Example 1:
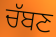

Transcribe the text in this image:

ਚੱਬਣ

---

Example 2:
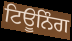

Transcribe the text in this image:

ਟਿਊਨਿੰਗ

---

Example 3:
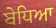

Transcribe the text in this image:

ਬੇਧਿਆ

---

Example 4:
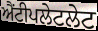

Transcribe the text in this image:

ਐਂਟੀਪਲੇਟਲੇਟ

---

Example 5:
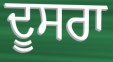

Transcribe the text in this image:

ਦੂਸਰਾ